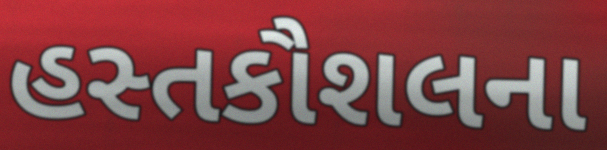
હસ્તકૌશલના